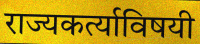
राज्यकर्त्याविषयी